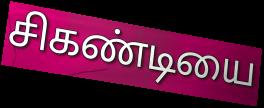
சிகண்டியை